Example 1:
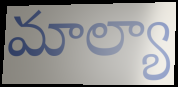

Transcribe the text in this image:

మాల్యా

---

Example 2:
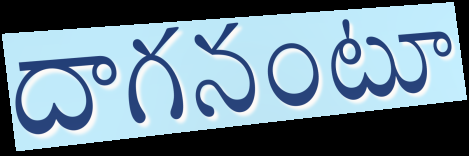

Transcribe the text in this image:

దాగనంటూ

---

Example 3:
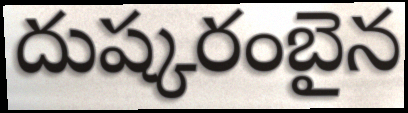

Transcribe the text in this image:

దుష్కరంబైన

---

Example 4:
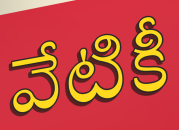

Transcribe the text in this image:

వేటికీ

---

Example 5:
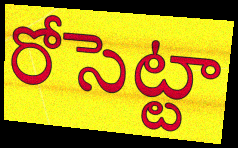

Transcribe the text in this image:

రోసెట్టా